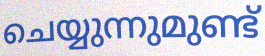
ചെയ്യുന്നുമുണ്ട്